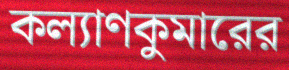
কল্যাণকুমারের